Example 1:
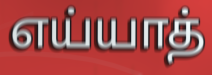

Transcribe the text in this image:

எய்யாத்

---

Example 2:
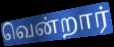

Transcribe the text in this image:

வென்றார்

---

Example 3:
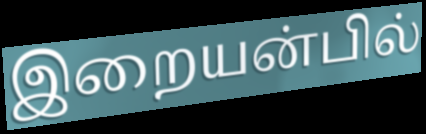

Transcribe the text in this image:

இறையன்பில்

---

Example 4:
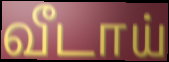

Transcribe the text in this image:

வீடாய்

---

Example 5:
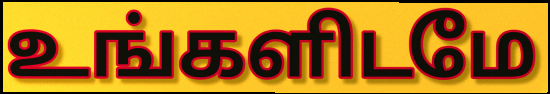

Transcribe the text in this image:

உங்களிடமே